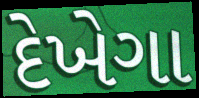
દેખેગા